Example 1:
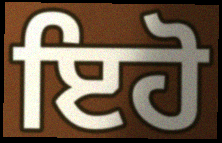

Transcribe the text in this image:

ਇਹੋ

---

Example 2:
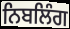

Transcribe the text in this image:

ਨਿਬਲਿੰਗ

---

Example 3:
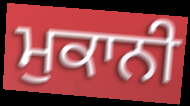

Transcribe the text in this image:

ਮੁਕਾਨੀ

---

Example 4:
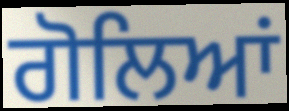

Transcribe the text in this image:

ਗੋਲਿਆਂ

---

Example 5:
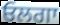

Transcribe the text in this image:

ਓਲਗਾ